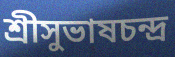
শ্রীসুভাষচন্দ্র